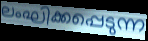
ലംഘിക്കപ്പെടുന്ന